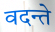
वदन्ते